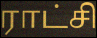
ராட்சி